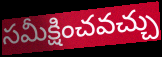
సమీక్షించవచ్చు